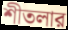
শীতলার